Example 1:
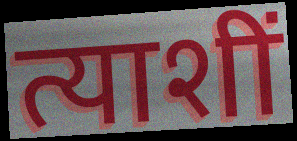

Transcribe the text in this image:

त्याशीं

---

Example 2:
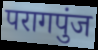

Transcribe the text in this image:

परागपुंज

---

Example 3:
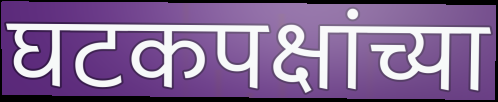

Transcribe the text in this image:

घटकपक्षांच्या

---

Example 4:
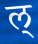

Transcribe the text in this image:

ल्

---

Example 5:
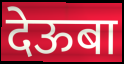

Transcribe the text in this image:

देऊबा